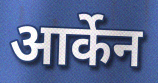
आर्केन